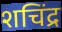
शचिंद्र